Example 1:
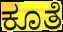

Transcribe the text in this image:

ಕೂತೆ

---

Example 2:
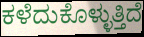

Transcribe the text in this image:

ಕಳೆದುಕೊಳ್ಳುತ್ತಿದೆ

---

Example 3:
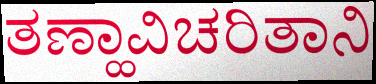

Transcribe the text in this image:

ತಣ್ಹಾವಿಚರಿತಾನಿ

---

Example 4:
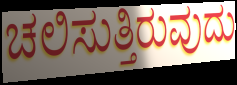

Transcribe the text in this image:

ಚಲಿಸುತ್ತಿರುವುದು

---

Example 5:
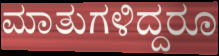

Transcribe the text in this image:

ಮಾತುಗಳಿದ್ದರೂ